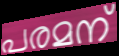
പരമന്